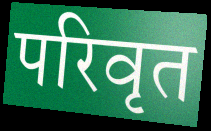
परिवृत